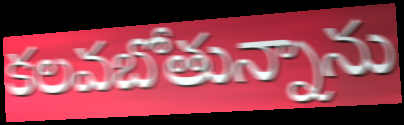
కలవబోతున్నాను